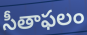
సీతాఫలం